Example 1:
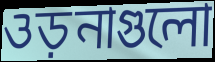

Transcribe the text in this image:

ওড়নাগুলো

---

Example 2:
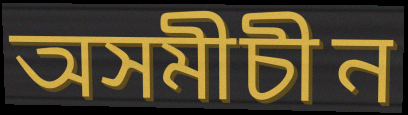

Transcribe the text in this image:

অসমীচীন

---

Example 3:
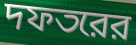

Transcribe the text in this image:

দফতরের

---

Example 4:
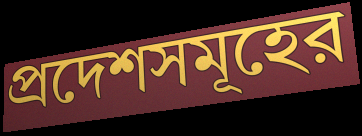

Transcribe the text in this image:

প্রদেশসমূহের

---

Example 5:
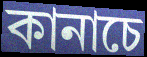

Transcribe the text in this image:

কানাচে